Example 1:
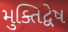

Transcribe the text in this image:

મુક્તિદ્વેષ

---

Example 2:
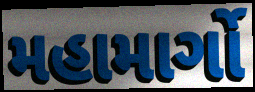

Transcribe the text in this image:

મહામાર્ગો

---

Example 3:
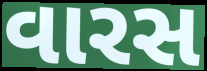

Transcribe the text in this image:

વારસ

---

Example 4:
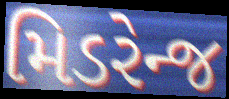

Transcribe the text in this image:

મિડરેન્જ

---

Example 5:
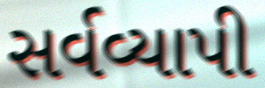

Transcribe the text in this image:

સર્વવ્યાપી